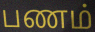
பணம்